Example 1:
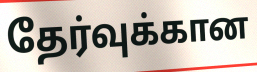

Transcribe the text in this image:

தேர்வுக்கான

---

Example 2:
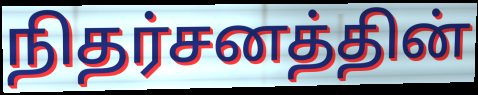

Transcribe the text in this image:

நிதர்சனத்தின்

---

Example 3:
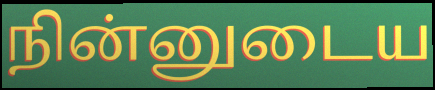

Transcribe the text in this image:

நின்னுடைய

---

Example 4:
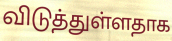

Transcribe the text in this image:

விடுத்துள்ளதாக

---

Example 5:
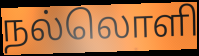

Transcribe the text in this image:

நல்லொளி